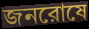
জনরোষে